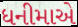
ધનીમાએ